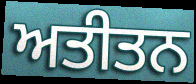
ਅਤੀਤਨ